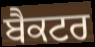
ਬੈਕਟਰ